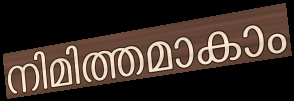
നിമിത്തമാകാം